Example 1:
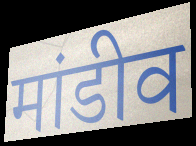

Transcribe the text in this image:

मांडीव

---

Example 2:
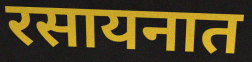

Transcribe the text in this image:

रसायनात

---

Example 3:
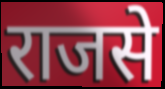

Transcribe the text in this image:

राजसे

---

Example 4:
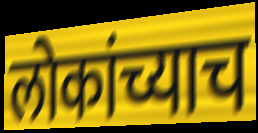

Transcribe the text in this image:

लोकांच्याच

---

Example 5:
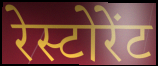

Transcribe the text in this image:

रेस्टोरेंट